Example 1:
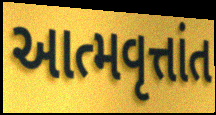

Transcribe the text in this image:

આત્મવૃત્તાંત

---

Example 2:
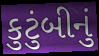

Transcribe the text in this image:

કુટુંબીનું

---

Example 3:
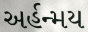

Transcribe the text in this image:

અર્હન્મય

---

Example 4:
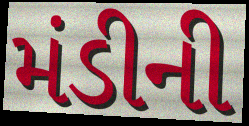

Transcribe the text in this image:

મંડીની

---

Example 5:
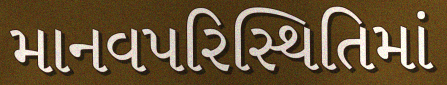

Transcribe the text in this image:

માનવપરિસ્થિતિમાં